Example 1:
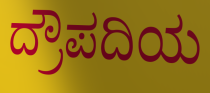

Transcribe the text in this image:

ದ್ರೌಪದಿಯ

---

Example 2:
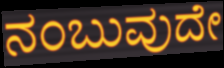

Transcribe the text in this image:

ನಂಬುವುದೇ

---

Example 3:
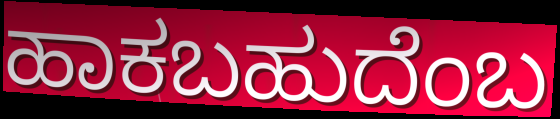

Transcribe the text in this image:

ಹಾಕಬಹುದೆಂಬ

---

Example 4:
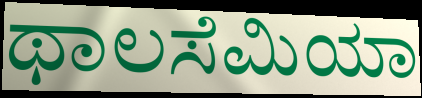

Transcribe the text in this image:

ಥಾಲಸೆಮಿಯಾ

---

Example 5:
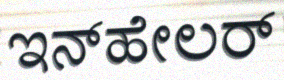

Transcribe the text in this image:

ಇನ್‌ಹೇಲರ್